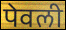
पेवली